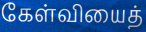
கேள்வியைத்